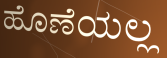
ಹೊಣೆಯಲ್ಲ